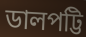
ডালপট্টি